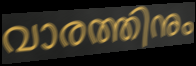
വാരത്തിനും